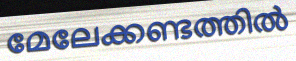
മേലേക്കണ്ടത്തിൽ